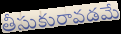
తీసుకురావడమే